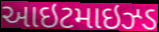
આઇટમાઇઝ્ડ